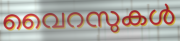
വൈറസുകൾ